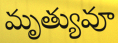
మృత్యువూ